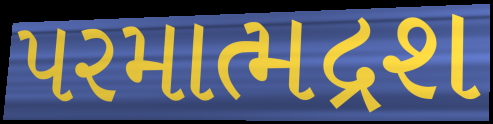
પરમાત્મદ્રશ